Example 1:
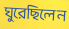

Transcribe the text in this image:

ঘুরেছিলেন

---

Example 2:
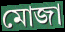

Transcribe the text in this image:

মোজা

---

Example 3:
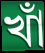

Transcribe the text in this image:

খাঁ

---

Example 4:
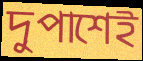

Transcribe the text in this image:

দুপাশেই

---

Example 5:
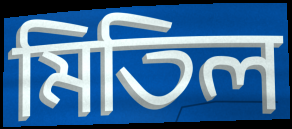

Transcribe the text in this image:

মিতিল